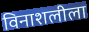
विनाशलीला